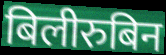
बिलीरुबिन